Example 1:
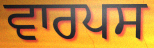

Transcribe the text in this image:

ਵਾਰਪਸ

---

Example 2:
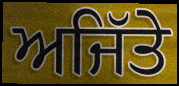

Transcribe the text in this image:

ਅਜਿੱਤੇ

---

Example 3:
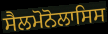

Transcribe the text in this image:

ਸੈਲਮੋਨੋਲਾਸਿਸ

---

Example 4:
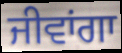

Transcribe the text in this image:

ਜੀਵਾਂਗਾ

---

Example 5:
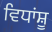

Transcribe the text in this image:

ਵਿਧਾਂਸ਼ੂ